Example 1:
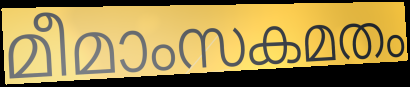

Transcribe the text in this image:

മീമാംസകമതം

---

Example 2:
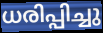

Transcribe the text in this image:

ധരിപ്പിച്ചു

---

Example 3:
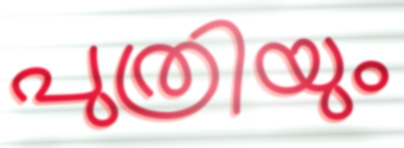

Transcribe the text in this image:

പുത്രിയും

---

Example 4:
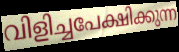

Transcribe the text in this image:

വിളിച്ചപേക്ഷിക്കുന്ന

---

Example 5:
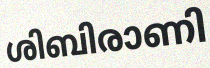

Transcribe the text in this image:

ശിബിരാണി